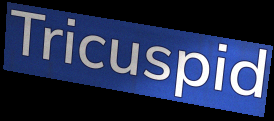
Tricuspid